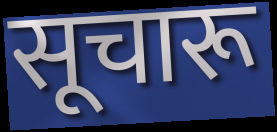
सूचारू